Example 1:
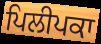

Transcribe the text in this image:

ਪਿਲੀਪਕਾ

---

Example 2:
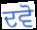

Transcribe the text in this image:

ਦਵੋ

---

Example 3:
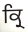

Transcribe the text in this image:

ਕ੍ਰਿ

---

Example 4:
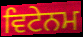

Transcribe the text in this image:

ਵਿਟੇਨਮ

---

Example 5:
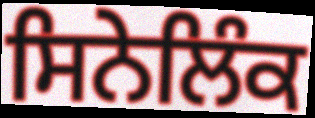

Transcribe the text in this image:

ਸਿਨੇਲਿੰਕ